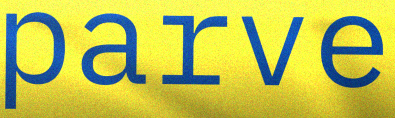
parve